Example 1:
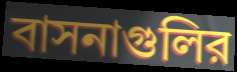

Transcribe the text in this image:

বাসনাগুলির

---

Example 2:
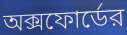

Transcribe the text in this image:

অক্সফোর্ডের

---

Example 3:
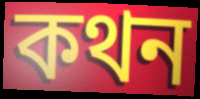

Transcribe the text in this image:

কথন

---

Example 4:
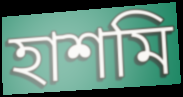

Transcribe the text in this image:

হাশমি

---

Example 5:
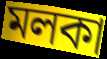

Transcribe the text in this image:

মলকা